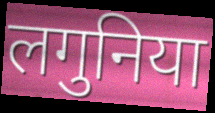
लगुनिया